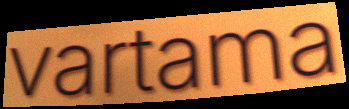
vartama